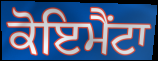
ਕੋਇਮੈਂਟਾ